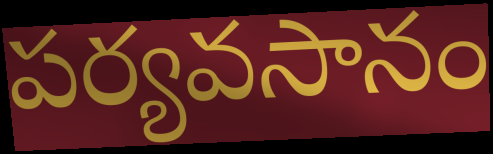
పర్యవసానం